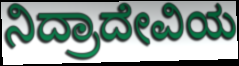
ನಿದ್ರಾದೇವಿಯ